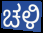
ಚಳಿ